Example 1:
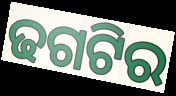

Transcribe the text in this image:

ଢଗଟିର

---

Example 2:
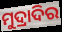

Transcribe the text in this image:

ମୁଦ୍ରାଦିର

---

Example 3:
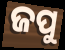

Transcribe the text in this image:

ଜପୁ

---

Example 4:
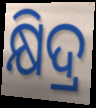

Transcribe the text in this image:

କ୍ଷିଦ୍ର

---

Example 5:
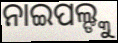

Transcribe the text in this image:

ନାଇପଲ୍ଙ୍କୁ